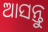
ଆସନ୍ତୁ